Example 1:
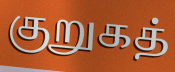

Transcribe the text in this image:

குறுகத்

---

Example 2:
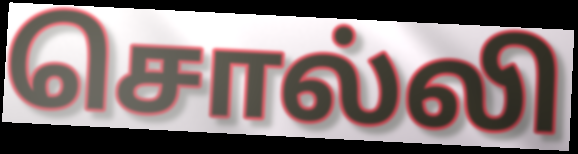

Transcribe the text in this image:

சொல்லி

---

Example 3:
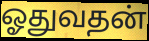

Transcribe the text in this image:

ஓதுவதன்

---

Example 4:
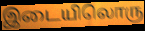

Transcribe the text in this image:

இடையிலொரு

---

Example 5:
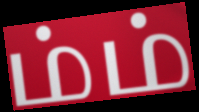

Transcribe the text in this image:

ம்ம்